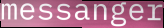
messanger